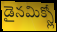
డైనమిక్స్లో